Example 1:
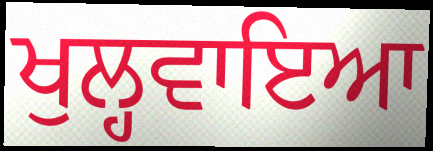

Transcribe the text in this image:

ਖੁਲ੍ਹਵਾਇਆ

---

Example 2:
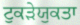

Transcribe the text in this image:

ਟੁਕੜੇਯੁਕਤਾ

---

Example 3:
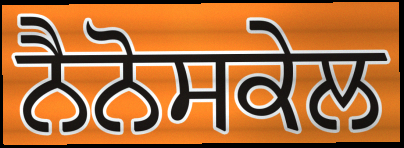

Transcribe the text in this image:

ਨੈਨੋਸਕੇਲ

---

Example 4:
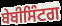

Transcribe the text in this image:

ਬੇਬੀਸਿੰਟਗ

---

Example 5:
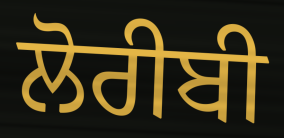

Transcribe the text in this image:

ਲੋਰੀਬੀ